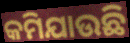
କମିଯାଉଛି